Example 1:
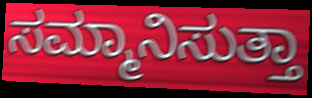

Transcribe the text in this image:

ಸಮ್ಮಾನಿಸುತ್ತಾ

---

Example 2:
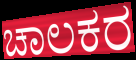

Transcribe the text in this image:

ಚಾಲಕರ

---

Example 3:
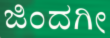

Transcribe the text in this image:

ಜಿಂದಗೀ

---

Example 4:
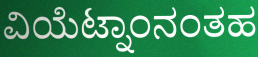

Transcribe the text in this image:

ವಿಯೆಟ್ನಾಂನಂತಹ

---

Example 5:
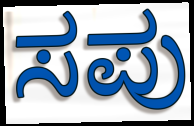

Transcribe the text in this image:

ಸಪು